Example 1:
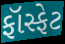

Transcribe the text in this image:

ફૉસ્ફેટ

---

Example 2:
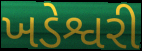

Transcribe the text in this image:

ખડેશ્વરી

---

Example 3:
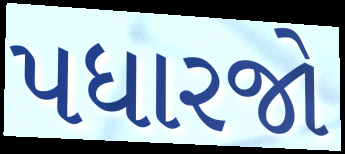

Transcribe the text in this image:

પધારજો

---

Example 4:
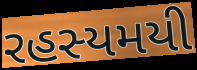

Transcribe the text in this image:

રહસ્યમયી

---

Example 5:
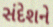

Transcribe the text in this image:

સંદેશને